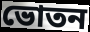
ভোতন